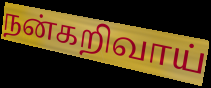
நன்கறிவாய்